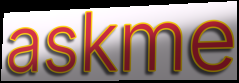
askme